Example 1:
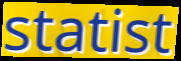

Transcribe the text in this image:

statist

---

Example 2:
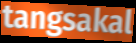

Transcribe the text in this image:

tangsakal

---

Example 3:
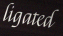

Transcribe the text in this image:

ligated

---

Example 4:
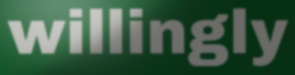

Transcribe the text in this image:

willingly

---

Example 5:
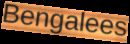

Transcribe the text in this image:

Bengalees